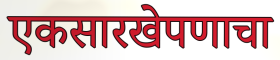
एकसारखेपणाचा